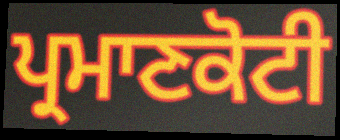
ਪ੍ਰਮਾਣਕੋਟੀ